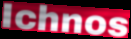
Ichnos